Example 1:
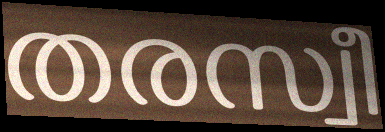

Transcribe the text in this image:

തരസ്വീ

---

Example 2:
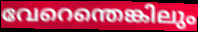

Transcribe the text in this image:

വേറെന്തെങ്കിലും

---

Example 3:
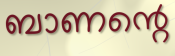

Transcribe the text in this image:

ബാണന്റെ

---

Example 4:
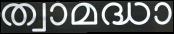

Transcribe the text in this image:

ത്വാമദ്ധാ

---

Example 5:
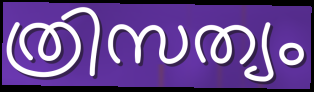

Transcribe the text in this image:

ത്രിസത്യം